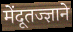
मेंदूतज्ज्ञाने